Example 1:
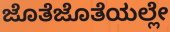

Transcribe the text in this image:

ಜೊತೆಜೊತೆಯಲ್ಲೇ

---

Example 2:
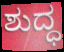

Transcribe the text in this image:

ಶುದ್ಧ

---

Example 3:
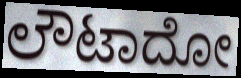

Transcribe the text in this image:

ಲೌಟಾದೋ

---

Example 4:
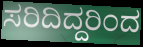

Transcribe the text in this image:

ಸರಿದಿದ್ದರಿಂದ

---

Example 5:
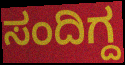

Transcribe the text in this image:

ಸಂದಿಗ್ದ